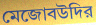
মেজোবউদির